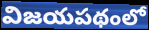
విజయపథంలో